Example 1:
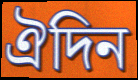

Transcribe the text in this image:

ঐদিন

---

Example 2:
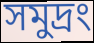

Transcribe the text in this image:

সমুদ্রং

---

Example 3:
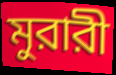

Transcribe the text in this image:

মুরারী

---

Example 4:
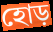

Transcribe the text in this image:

হোড়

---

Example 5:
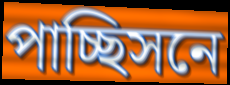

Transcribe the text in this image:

পাচ্ছিসনে